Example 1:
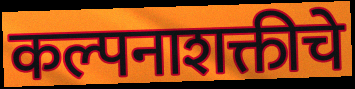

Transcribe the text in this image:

कल्पनाशक्तीचे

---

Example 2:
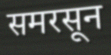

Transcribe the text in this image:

समरसून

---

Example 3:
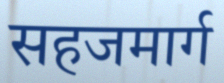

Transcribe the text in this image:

सहजमार्ग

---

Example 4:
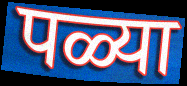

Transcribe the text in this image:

पळ्या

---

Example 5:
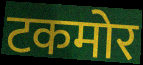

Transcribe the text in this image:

टकमोर